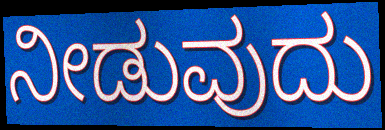
ನೀಡುವುದು